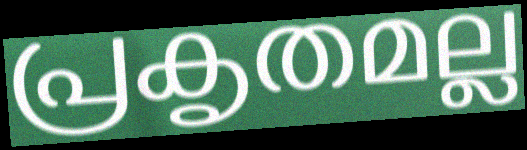
പ്രകൃതമല്ല